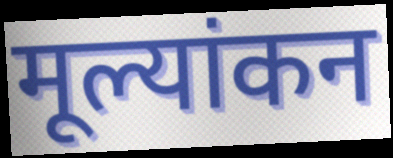
मूल्यांकन